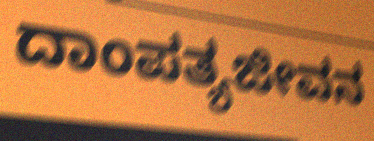
ದಾಂಪತ್ಯಜೀವನ